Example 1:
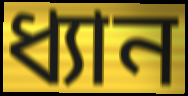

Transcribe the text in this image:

ধ্যান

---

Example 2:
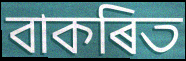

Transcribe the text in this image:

বাকৰিত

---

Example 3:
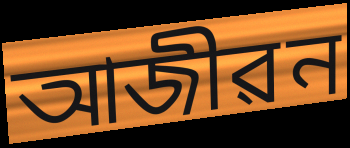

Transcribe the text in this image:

আজীৱন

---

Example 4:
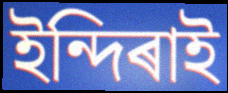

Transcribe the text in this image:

ইন্দিৰাই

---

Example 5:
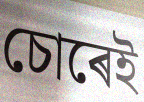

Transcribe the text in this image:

চোৰেই